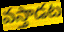
వస్తాడట